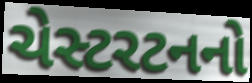
ચેસ્ટરટનનો